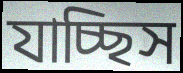
যাচ্ছিস